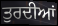
ਤੁਰਦੀਆਂ